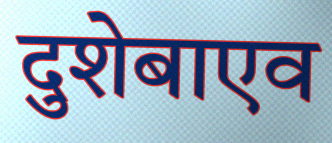
दुशेबाएव